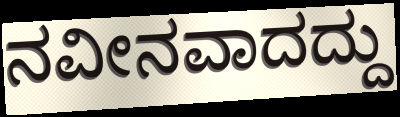
ನವೀನವಾದದ್ದು